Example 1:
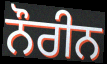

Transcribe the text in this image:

ਨੌਰੀਨ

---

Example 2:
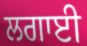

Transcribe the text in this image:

ਲਗਾਈ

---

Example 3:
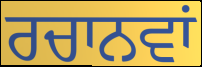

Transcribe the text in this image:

ਰਚਾਨਵਾਂ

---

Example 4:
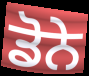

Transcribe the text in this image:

ਡੋਨੇ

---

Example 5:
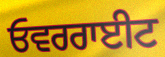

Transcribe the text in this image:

ਓਵਰਰਾਈਟ